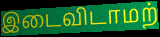
இடைவிடாமற்